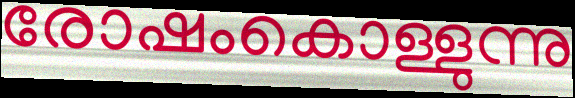
രോഷംകൊള്ളുന്നു